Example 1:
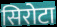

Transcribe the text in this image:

सिरोटा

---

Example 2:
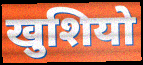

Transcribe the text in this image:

खुशियो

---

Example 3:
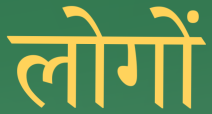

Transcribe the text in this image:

लोगों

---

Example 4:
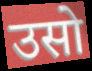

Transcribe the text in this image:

उसो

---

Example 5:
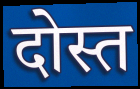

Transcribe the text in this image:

दोस्त